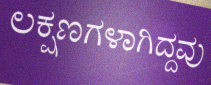
ಲಕ್ಷಣಗಳಾಗಿದ್ದವು